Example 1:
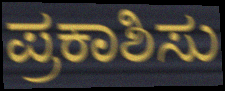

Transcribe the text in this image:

ಪ್ರಕಾಶಿಸು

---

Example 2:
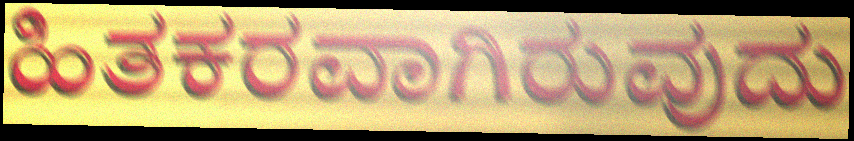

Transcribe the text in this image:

ಹಿತಕರವಾಗಿರುವುದು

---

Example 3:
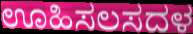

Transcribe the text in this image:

ಊಹಿಸಲಸದಳ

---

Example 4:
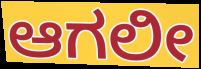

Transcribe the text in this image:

ಆಗಲೀ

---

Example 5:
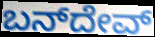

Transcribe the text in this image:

ಬನ್‌ದೇವ್